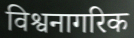
विश्वनागरिक